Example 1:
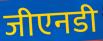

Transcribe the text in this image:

जीएनडी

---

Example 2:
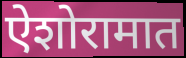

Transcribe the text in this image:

ऐशोरामात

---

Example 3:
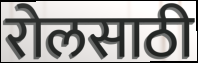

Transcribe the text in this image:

रोलसाठी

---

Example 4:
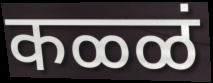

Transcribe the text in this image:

कळ्ळं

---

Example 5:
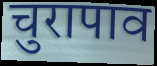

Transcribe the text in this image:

चुरापाव